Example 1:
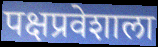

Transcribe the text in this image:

पक्षप्रवेशाला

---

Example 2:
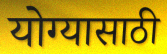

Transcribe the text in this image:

योग्यासाठी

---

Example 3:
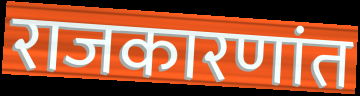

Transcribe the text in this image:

राजकारणांत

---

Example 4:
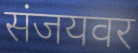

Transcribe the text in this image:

संजयवर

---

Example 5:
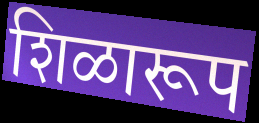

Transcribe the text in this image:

शिळारूप